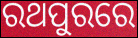
ରଥପୁରରେ